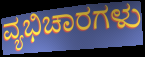
ವ್ಯಭಿಚಾರಗಳು